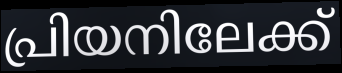
പ്രിയനിലേക്ക്